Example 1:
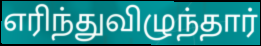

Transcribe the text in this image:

எரிந்துவிழுந்தார்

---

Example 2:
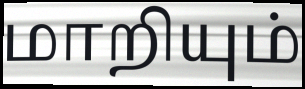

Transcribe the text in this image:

மாறியும்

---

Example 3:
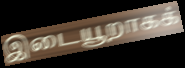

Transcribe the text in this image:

இடையூறாகக்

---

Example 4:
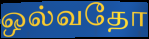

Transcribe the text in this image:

ஒல்வதோ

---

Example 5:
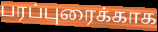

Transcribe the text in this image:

பரப்புரைக்காக